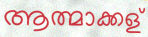
ആത്മാക്കള്